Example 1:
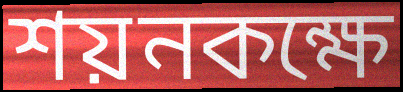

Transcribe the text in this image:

শয়নকক্ষে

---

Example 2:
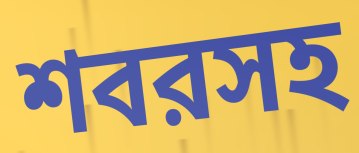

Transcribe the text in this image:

শবরসহ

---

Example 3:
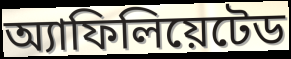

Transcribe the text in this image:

অ্যাফিলিয়েটেড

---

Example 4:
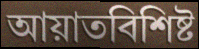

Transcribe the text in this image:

আয়াতবিশিষ্ট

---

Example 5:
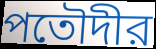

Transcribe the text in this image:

পতৌদীর